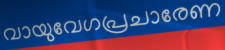
വായുവേഗപ്രചാരേണ